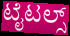
ಟೈಟಲ್ಸ್